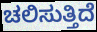
ಚಲಿಸುತ್ತಿದೆ